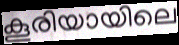
കൂരിയായിലെ